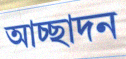
আচ্ছাদন